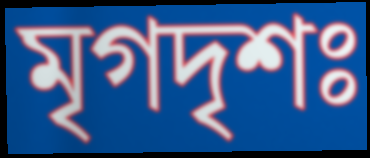
মৃগদৃশঃ